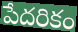
పేదరికం